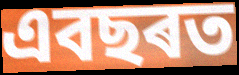
এবছৰত